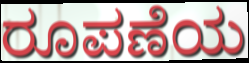
ರೂಪಣೆಯ